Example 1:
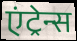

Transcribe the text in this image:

एंट्रेन्स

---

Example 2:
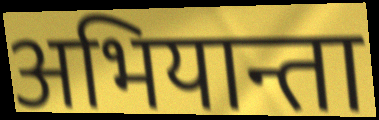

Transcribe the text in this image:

अभियान्ता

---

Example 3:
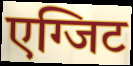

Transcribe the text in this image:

एग्जिट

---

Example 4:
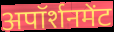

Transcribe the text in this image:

अपॉर्शनमेंट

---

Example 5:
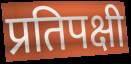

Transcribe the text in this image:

प्रतिपक्षी